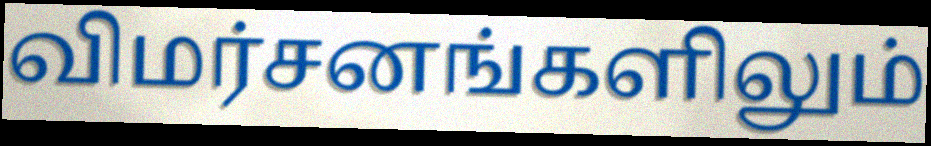
விமர்சனங்களிலும்